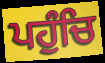
ਪਹੁੰਚਿ